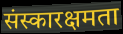
संस्कारक्षमता